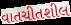
વાતચીતશીલ